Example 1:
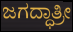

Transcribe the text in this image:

ಜಗದ್ಧಾತ್ರೀ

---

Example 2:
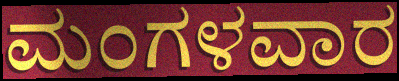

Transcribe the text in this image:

ಮಂಗಳವಾರ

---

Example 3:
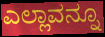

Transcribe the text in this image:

ಎಲ್ಲಾವನ್ನೂ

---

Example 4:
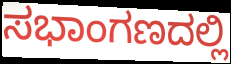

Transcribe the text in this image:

ಸಭಾಂಗಣದಲ್ಲಿ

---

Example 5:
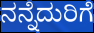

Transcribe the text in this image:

ನನ್ನೆದುರಿಗೆ